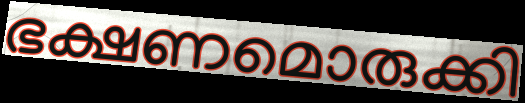
ഭക്ഷണമൊരുക്കി